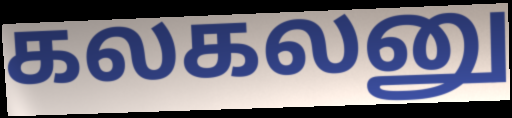
கலகலனு